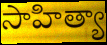
సాహిత్యా